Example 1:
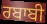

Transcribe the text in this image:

ਰਬਾਬੀ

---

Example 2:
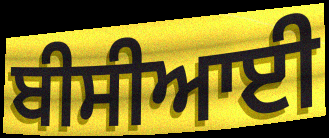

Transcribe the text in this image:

ਬੀਸੀਆਈ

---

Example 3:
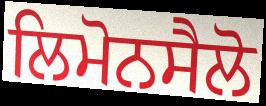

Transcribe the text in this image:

ਲਿਮੋਨਸੈਲੋ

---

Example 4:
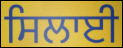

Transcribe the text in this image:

ਸਿਲਾਈ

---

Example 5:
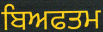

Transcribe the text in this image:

ਬਿਅਫਤਮ